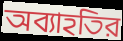
অব্যাহতির